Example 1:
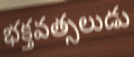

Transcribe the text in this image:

భక్తవత్సలుడు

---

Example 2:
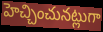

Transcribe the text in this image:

హెచ్చించునట్లుగా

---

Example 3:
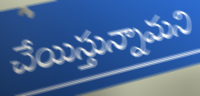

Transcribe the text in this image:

చేయిస్తున్నామని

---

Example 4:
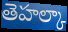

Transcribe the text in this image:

తెహల్కా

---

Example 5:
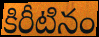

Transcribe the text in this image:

కిరీటినం